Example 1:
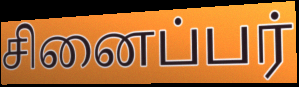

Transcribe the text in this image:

சினைப்பர்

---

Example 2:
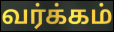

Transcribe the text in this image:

வர்க்கம்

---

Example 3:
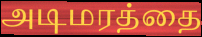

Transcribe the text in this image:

அடிமரத்தை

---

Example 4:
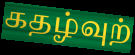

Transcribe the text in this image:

கதழ்வுற்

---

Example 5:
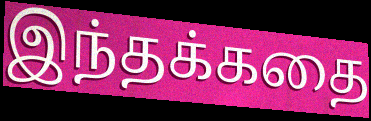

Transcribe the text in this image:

இந்தக்கதை